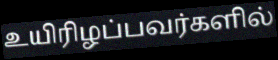
உயிரிழப்பவர்களில்